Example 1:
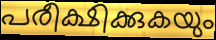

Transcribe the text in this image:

പരീക്ഷിക്കുകയും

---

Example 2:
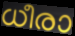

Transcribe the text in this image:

ധീരാ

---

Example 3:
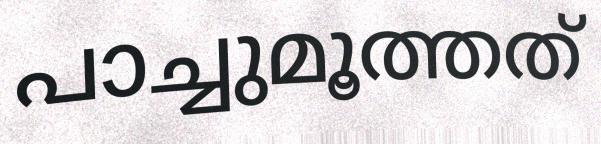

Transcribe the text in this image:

പാച്ചുമൂത്തത്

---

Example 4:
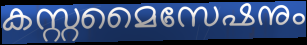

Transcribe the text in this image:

കസ്റ്റമൈസേഷനും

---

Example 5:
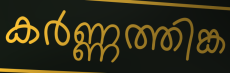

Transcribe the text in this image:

കർണ്ണത്തിങ്ക